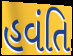
હવંતિ